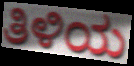
ತಿಳಿಯ